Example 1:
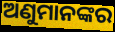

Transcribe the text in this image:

ଅଣୁମାନଙ୍କର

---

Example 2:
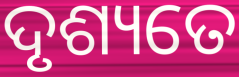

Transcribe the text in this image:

ଦୃଶ୍ୟତେ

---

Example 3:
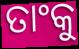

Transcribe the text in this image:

ତାଂକୁ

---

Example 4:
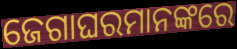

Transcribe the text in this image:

ଜେଗାଘରମାନଙ୍କରେ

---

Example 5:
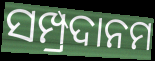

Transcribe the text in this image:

ସମ୍ପ୍ରଦାନମ